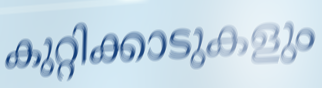
കുറ്റിക്കാടുകളും